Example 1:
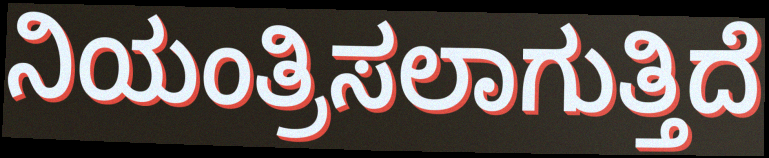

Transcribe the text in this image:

ನಿಯಂತ್ರಿಸಲಾಗುತ್ತಿದೆ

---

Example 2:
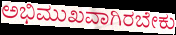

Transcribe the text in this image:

ಅಭಿಮುಖವಾಗಿರಬೇಕು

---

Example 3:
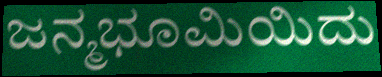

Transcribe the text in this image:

ಜನ್ಮಭೂಮಿಯಿದು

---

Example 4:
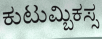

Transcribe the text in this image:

ಕುಟುಮ್ಬಿಕಸ್ಸ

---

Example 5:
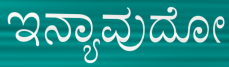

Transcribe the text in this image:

ಇನ್ಯಾವುದೋ